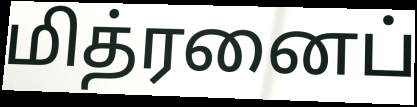
மித்ரனைப்